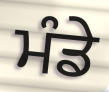
ਮੰਡੇ